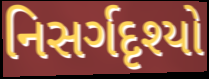
નિસર્ગદૃશ્યો